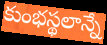
కుంభస్థలాన్నే